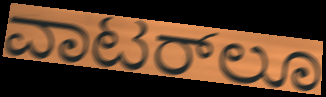
ವಾಟರ್‌ಲೂ